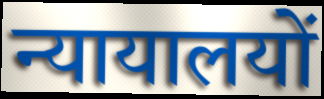
न्यायालयों